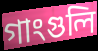
গাংগুলি